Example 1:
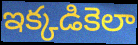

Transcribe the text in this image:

ఇక్కడికెలా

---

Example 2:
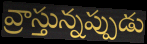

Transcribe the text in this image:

వ్రాస్తున్నప్పుడు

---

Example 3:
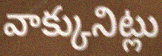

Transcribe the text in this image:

వాక్కునిట్లు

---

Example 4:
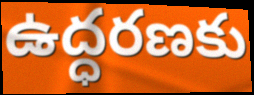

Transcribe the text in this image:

ఉద్ధరణకు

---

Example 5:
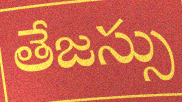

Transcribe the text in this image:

తేజస్సు